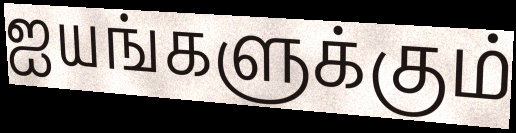
ஐயங்களுக்கும்